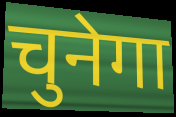
चुनेगा